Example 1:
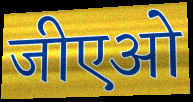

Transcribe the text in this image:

जीएओ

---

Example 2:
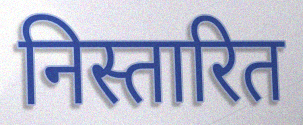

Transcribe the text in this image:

निस्तारित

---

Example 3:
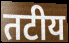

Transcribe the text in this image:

तटीय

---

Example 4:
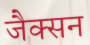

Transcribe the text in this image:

जैक्सन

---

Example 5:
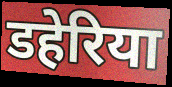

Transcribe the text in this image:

डहेरिया